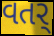
વતર્